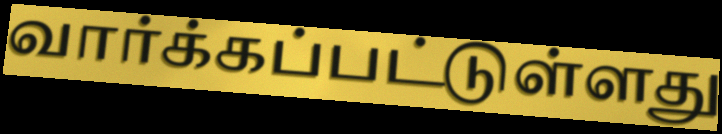
வார்க்கப்பட்டுள்ளது